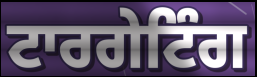
ਟਾਰਗੇਟਿੰਗ